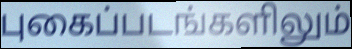
புகைப்படங்களிலும்